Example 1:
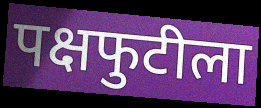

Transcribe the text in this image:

पक्षफुटीला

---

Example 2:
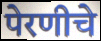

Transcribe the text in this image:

पेरणीचे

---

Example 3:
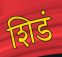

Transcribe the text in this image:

शिडं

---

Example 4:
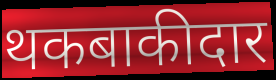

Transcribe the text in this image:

थकबाकीदार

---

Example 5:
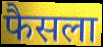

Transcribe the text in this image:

फैसला